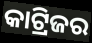
କାଟ୍ରିଜର